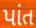
પાંત